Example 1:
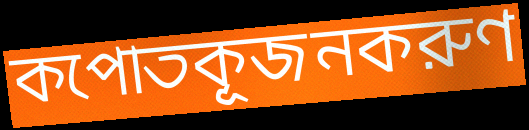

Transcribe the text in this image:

কপোতকূজনকরুণ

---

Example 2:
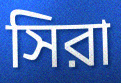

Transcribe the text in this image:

সিরা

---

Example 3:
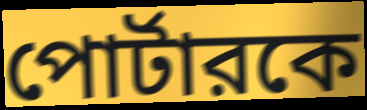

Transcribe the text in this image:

পোর্টারকে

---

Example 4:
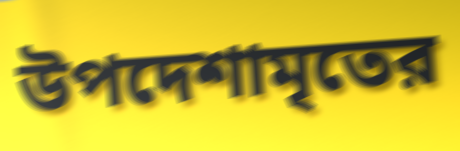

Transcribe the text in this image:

উপদেশামৃতের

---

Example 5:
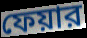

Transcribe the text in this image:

ফেয়ার